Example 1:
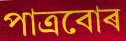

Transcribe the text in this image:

পাত্ৰবোৰ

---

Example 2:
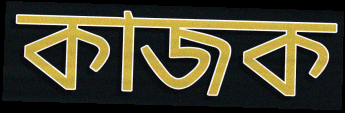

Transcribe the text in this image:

কাজক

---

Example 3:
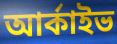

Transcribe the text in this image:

আৰ্কাইভ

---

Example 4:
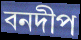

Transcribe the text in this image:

বনদীপ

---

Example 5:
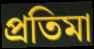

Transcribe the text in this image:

প্ৰতিমা